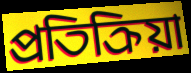
প্ৰতিক্ৰিয়া